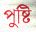
পুষ্টি